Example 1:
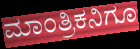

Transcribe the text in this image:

ಮಾಂತ್ರಿಕನಿಗೂ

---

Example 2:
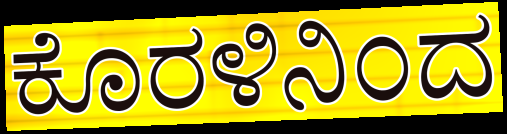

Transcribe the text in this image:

ಕೊರಳಿನಿಂದ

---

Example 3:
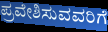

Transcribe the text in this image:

ಪ್ರವೇಶಿಸುವವರಿಗೆ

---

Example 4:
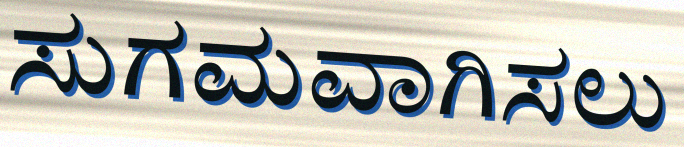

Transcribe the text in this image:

ಸುಗಮವಾಗಿಸಲು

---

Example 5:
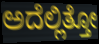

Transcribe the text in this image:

ಅದೆಲ್ಲಿತ್ತೋ